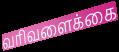
வரிவளைக்கை